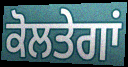
ਕੋਲਤੇਗਾਂ